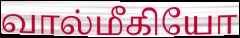
வால்மீகியோ